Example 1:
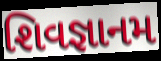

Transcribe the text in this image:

શિવજ્ઞાનમ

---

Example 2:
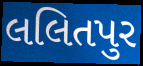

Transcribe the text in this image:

લલિતપુર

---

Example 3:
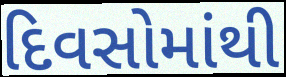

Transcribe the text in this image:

દિવસોમાંથી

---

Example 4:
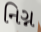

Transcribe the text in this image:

નિગ્ન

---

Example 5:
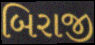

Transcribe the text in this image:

બિરાજી